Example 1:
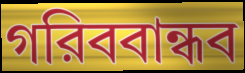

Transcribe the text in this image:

গরিববান্ধব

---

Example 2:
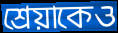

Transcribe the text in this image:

শ্রেয়াকেও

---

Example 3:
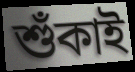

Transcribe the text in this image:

শুঁকাই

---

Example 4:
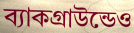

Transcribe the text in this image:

ব্যাকগ্রাউন্ডেও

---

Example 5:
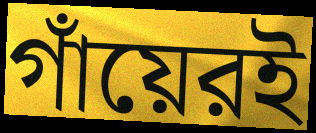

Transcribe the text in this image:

গাঁয়েরই